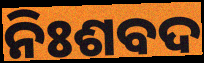
ନିଃଶବଦ